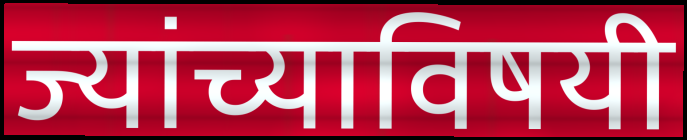
ज्यांच्याविषयी